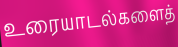
உரையாடல்களைத்